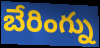
బేరింగ్ను